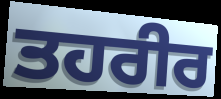
ਤਹਰੀਰ